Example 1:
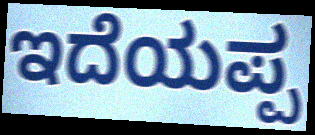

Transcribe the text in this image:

ಇದೆಯಪ್ಪ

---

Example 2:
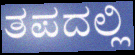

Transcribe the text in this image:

ತಪದಲ್ಲಿ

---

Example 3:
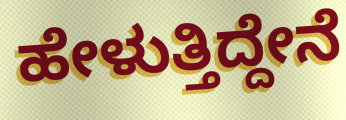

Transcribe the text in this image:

ಹೇಳುತ್ತಿದ್ದೇನೆ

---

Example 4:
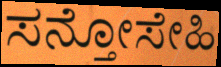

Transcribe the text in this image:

ಸನ್ತೋಸೇಹಿ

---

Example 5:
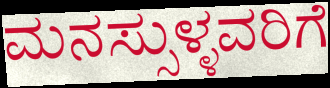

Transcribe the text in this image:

ಮನಸ್ಸುಳ್ಳವರಿಗೆ